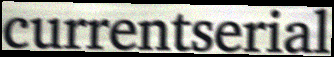
currentserial